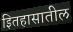
इितहासातील